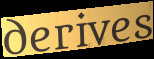
derives